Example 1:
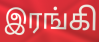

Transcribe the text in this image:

இரங்கி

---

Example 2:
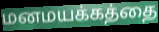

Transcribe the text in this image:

மனமயக்கத்தை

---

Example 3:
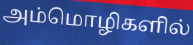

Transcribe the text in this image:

அம்மொழிகளில்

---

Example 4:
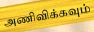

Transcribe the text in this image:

அணிவிக்கவும்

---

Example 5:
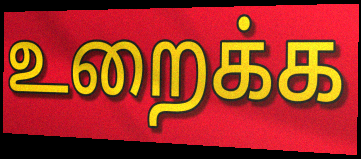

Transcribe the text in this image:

உறைக்க